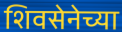
शिवसेनेच्या